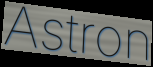
Astron